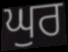
ਘੁਰ